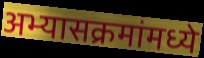
अभ्यासक्रमांमध्ये